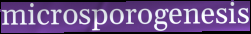
microsporogenesis